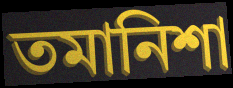
তমানিশা